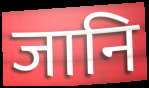
जानि